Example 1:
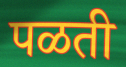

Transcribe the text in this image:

पळती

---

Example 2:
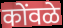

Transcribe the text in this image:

कोंवळे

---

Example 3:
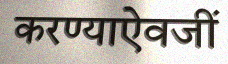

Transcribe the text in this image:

करण्याऐवजीं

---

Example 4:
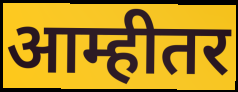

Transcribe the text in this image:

आम्हीतर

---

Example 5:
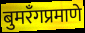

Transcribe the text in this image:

बुमरँगप्रमाणे